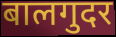
बालगुदर